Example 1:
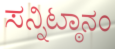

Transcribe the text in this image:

ಸನ್ನಿಟ್ಠಾನಂ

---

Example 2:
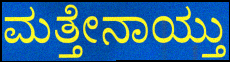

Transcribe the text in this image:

ಮತ್ತೇನಾಯ್ತು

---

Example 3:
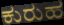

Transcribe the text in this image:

ಕುರುಹ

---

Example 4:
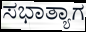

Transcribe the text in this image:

ಸಭಾತ್ಯಾಗ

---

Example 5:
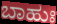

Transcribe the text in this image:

ಬಾಹುಃ